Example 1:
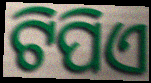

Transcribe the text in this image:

ଟିପିଏ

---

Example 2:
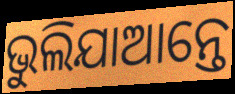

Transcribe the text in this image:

ଭୁଲିଯାଆନ୍ତେ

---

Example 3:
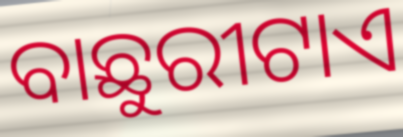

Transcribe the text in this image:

ବାଛୁରୀଟାଏ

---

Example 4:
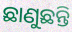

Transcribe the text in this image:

ଛାଣୁଛନ୍ତି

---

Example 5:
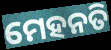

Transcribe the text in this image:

ମେହନତି